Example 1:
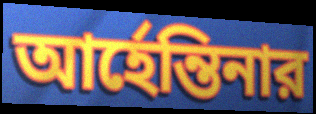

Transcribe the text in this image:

আর্হেন্তিনার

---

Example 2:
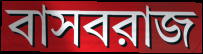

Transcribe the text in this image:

বাসবরাজ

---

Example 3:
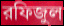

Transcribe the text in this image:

রফিজুল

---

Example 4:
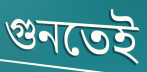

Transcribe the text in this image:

গুনতেই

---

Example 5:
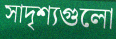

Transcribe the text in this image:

সাদৃশ্যগুলো